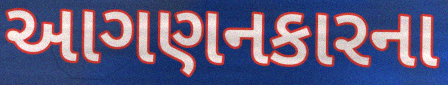
આગણનકારના